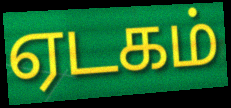
ஏடகம்